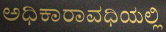
ಅಧಿಕಾರಾವಧಿಯಲ್ಲಿ